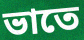
ভাতে